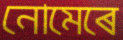
নোমেৰে